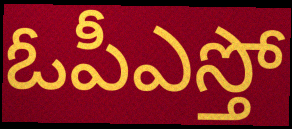
ఓపీఎస్తో